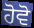
ਹੋਵੋ